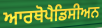
ਆਰਥੋਪੈਡਿਸੀਅਨ